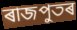
ৰাজপুতৰ